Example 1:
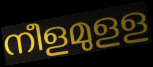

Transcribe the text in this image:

നീളമുളള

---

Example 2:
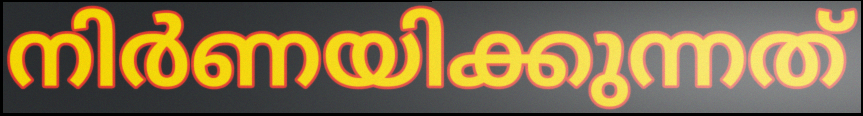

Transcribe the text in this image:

നിർണയിക്കുന്നത്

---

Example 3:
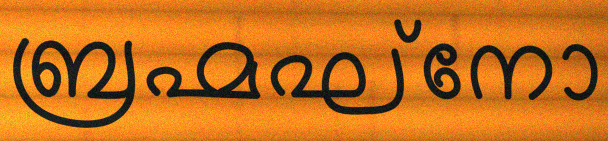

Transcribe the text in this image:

ബ്രഹ്മഘ്നോ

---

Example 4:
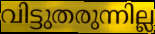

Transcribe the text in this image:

വിട്ടുതരുന്നില്ല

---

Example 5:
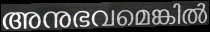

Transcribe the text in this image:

അനുഭവമെങ്കിൽ